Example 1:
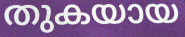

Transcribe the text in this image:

തുകയായ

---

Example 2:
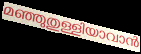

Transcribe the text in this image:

മഞ്ഞുതുള്ളിയാവാൻ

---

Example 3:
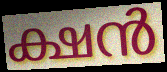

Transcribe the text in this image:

ക്ഷൻ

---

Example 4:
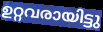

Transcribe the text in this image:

ഉറ്റവരായിട്ടു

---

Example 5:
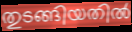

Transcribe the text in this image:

തുടങ്ങിയതിൽ